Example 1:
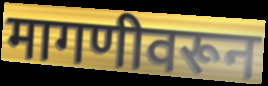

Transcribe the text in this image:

मागणीवरून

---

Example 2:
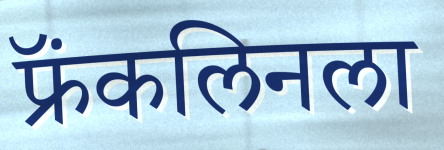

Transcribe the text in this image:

फ्रॅंकलिनला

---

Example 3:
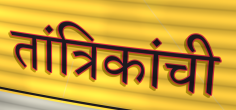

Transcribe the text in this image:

तांत्रिकांची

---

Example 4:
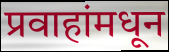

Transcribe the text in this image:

प्रवाहांमधून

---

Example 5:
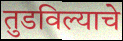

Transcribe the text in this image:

तुडविल्याचे